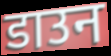
डाउन